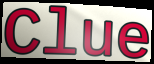
Clue